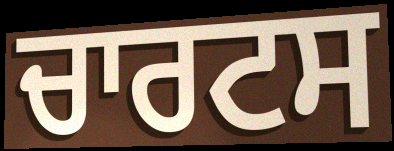
ਚਾਰਟਸ